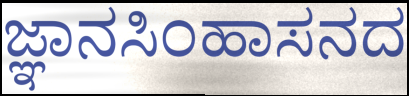
ಜ್ಞಾನಸಿಂಹಾಸನದ